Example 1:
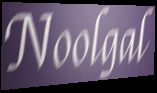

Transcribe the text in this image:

Noolgal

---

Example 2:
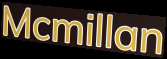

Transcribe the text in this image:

Mcmillan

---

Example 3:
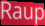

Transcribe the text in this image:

Raup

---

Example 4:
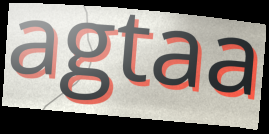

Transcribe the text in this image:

agtaa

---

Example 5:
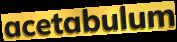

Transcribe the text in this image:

acetabulum